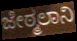
ಜೇಠ್ಮಲಾನಿ